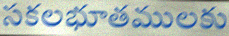
సకలభూతములకు